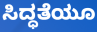
ಸಿದ್ಧತೆಯೂ